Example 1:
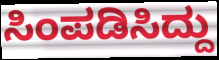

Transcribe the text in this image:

ಸಿಂಪಡಿಸಿದ್ದು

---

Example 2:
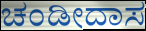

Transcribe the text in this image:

ಚಂಡೀದಾಸ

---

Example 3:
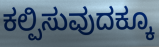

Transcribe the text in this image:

ಕಲ್ಪಿಸುವುದಕ್ಕೂ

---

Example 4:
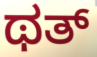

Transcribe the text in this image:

ಥತ್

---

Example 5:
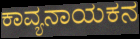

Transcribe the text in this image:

ಕಾವ್ಯನಾಯಕನ